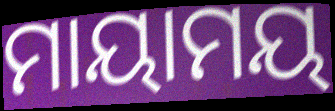
ମାୟାମୟ